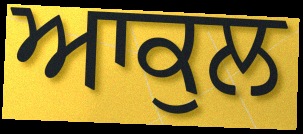
ਆਕੁਲ